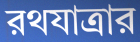
রথযাত্রার